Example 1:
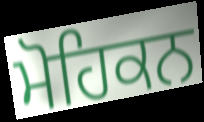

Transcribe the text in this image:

ਮੋਹਿਕਨ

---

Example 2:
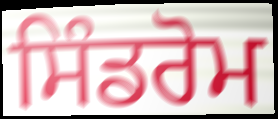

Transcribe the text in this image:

ਸਿੰਡਰੋਮ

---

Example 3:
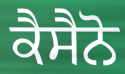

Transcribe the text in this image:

ਕੈਸੈਨੋ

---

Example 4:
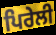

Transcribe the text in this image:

ਪਿਰੇਲੀ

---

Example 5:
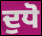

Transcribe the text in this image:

ਦੁਧੋ